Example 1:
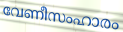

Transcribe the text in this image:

വേണീസംഹാരം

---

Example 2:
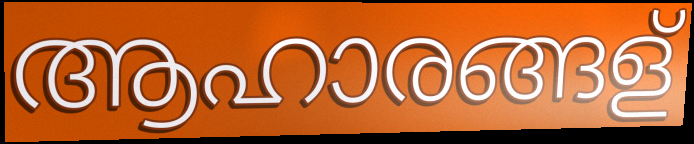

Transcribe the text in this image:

ആഹാരങ്ങള്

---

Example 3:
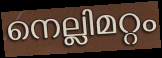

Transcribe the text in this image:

നെല്ലിമറ്റം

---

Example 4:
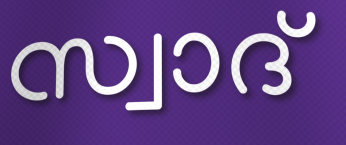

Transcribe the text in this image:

സ്വാദ്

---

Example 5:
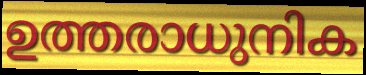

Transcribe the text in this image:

ഉത്തരാധുനിക